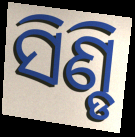
ସିଣ୍ଡି